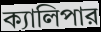
ক্যালিপার